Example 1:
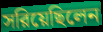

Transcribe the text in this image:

সরিয়েছিলেন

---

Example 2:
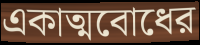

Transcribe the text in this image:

একাত্মবোধের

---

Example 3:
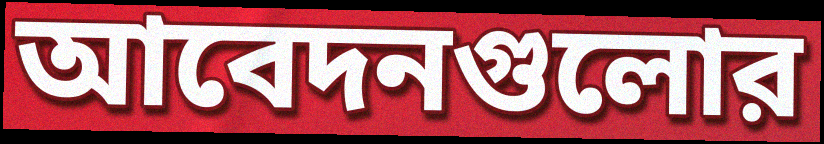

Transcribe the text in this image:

আবেদনগুলোর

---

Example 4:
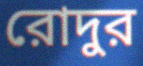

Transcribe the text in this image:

রোদুর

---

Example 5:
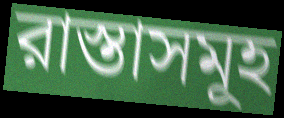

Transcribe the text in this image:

রাস্তাসমূহ